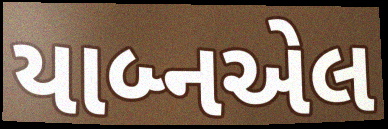
યાબ્નએલ